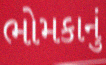
ભોમકાનું